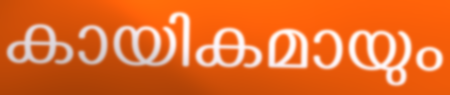
കായികമായും